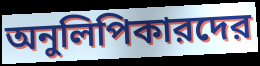
অনুলিপিকারদের